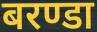
बरण्डा